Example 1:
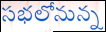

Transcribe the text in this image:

సభలోనున్న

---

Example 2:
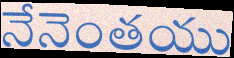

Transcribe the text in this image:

నేనెంతయు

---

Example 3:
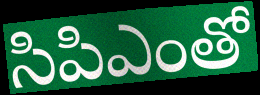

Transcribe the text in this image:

సిపిఎంతో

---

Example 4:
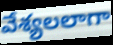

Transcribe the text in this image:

వేశ్యలలాగా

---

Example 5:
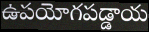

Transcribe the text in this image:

ఉపయోగపడ్డాయ